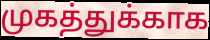
முகத்துக்காக